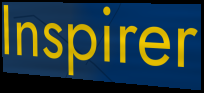
Inspirer